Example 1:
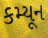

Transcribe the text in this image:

કમ્યૂન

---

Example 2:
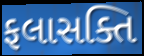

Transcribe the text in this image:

ફલાસક્તિ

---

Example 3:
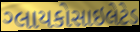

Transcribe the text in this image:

ગ્લાયકોસાઇલેટેડ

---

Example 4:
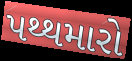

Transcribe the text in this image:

પથ્થમારો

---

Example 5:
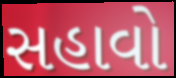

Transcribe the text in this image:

સહાવો